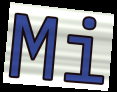
Mi